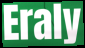
Eraly